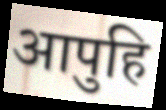
आपुहि